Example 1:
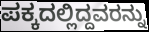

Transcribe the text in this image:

ಪಕ್ಕದಲ್ಲಿದ್ದವರನ್ನು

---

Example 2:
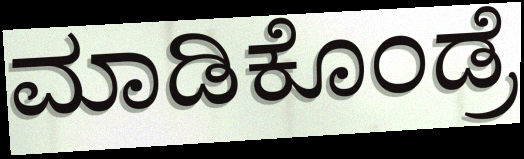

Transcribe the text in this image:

ಮಾಡಿಕೊಂಡ್ರೆ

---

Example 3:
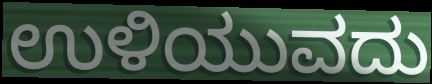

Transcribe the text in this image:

ಉಳಿಯುವದು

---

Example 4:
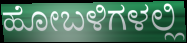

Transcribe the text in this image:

ಹೋಬಳಿಗಳಲ್ಲಿ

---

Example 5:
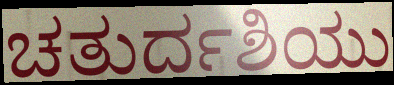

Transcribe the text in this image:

ಚತುರ್ದಶಿಯು